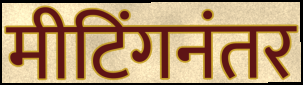
मीटिंगनंतर